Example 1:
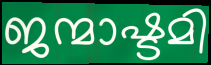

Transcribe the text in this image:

ജന്മാഷ്ടമി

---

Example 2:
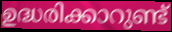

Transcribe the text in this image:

ഉദ്ധരിക്കാറുണ്ട്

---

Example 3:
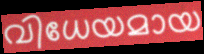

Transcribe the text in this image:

വിധേയമായ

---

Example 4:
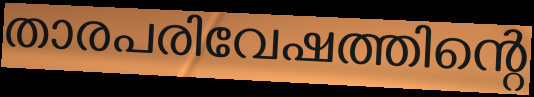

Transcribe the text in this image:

താരപരിവേഷത്തിന്റെ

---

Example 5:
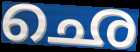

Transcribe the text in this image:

ഛെ